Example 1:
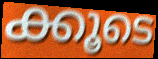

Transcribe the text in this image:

ക്കൂടെ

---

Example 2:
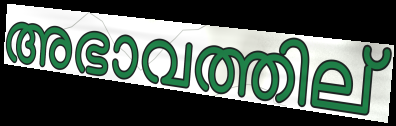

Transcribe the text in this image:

അഭാവത്തില്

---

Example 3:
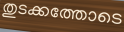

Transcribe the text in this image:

തുടക്കത്തോടെ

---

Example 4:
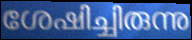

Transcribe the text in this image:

ശേഷിച്ചിരുന്നു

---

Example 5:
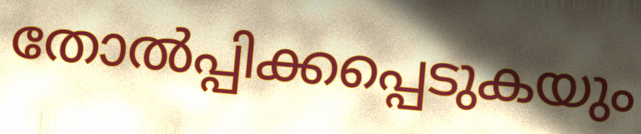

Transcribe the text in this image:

തോൽപ്പിക്കപ്പെടുകയും